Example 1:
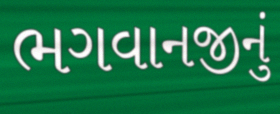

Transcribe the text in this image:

ભગવાનજીનું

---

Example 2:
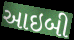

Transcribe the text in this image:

આઇબી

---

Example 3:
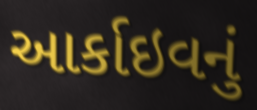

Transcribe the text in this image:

આર્કાઇવનું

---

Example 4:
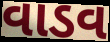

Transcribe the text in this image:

વાડવ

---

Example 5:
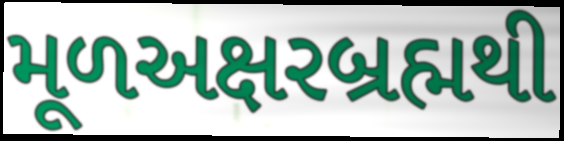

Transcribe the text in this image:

મૂળઅક્ષરબ્રહ્મથી